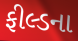
ફીલ્ડના